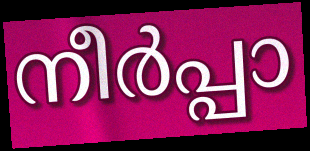
നീർപ്പാ